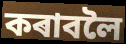
কৰাবলৈ